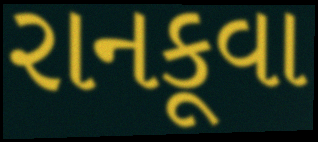
રાનકૂવા